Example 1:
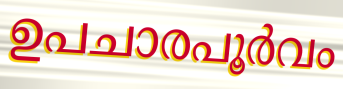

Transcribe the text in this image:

ഉപചാരപൂർവം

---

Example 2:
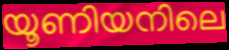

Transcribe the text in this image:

യൂണിയനിലെ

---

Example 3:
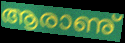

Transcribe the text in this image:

ആരാണു്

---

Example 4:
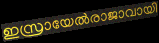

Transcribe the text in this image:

ഇസ്രായേൽരാജാവായി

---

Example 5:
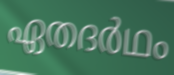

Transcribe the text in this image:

ഏതദർഥം